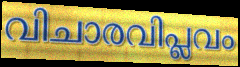
വിചാരവിപ്ലവം